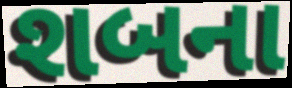
શબના